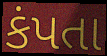
કંપતા